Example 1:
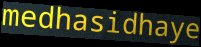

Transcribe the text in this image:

medhasidhaye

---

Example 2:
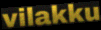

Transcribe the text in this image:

vilakku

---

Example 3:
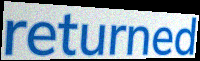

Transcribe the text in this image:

returned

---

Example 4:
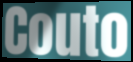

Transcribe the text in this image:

Couto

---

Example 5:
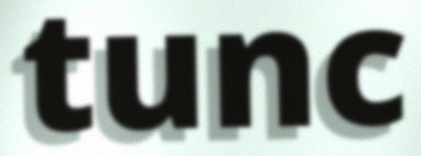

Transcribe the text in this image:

tunc